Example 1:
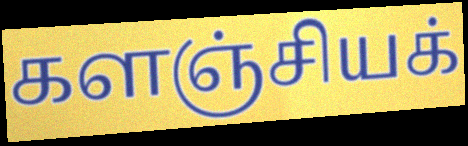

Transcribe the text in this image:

களஞ்சியக்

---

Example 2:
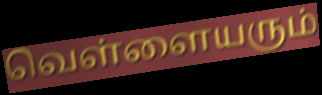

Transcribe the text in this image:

வெள்ளையரும்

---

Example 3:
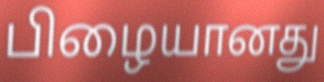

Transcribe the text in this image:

பிழையானது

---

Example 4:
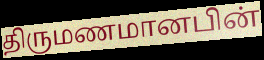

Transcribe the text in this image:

திருமணமானபின்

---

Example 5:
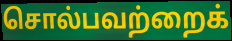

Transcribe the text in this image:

சொல்பவற்றைக்